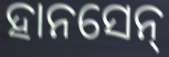
ହାନସେନ୍